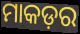
ମାକଡ଼ର